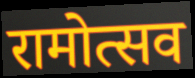
रामोत्सव